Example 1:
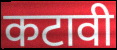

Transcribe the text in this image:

कटावी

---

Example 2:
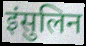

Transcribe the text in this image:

इंसुलिन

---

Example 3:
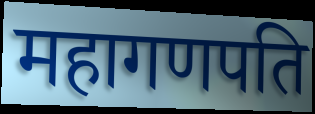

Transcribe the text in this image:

महागणपति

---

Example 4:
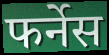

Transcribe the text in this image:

फर्नेस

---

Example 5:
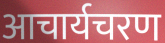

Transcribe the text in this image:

आचार्यचरण